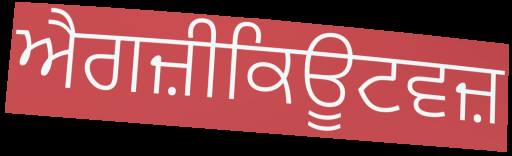
ਐਗਜ਼ੀਕਿਊਟਵਜ਼